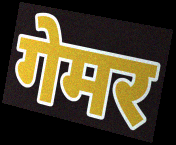
गेमर